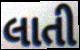
લાતી